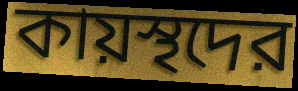
কায়স্থদের